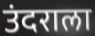
उंदराला